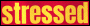
stressed